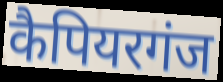
कैपियरगंज